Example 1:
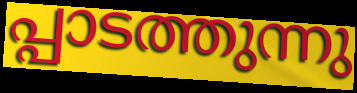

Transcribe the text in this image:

പ്പാടത്തുന്നു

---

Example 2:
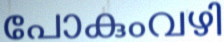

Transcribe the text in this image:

പോകുംവഴി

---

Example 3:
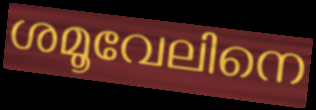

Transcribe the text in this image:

ശമൂവേലിനെ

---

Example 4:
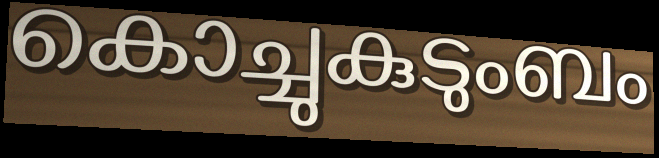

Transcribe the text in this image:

കൊച്ചുകുടുംബം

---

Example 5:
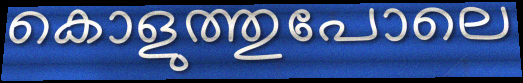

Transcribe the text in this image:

കൊളുത്തുപോലെ